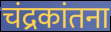
चंद्रकांतना